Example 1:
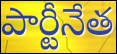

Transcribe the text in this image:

పార్టీనేత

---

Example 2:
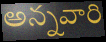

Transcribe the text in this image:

అన్నవారి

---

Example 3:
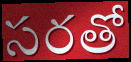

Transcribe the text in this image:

సరతో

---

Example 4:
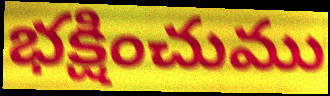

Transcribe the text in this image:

భక్షించుము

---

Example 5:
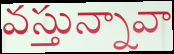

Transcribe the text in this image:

వస్తున్నావా